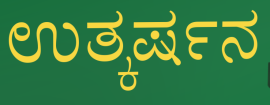
ಉತ್ಕರ್ಷನ